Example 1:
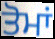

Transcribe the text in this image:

ਤੋਮਾਂ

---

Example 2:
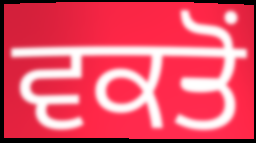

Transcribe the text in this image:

ਵਕਤੋਂ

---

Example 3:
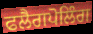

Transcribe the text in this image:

ਫਲੈਗਪੋਲਿੰਗ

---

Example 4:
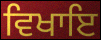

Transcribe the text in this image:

ਵਿਖਾਇ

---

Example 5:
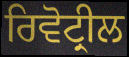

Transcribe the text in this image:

ਰਿਵੋਟ੍ਰੀਲ